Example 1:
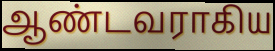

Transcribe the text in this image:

ஆண்டவராகிய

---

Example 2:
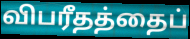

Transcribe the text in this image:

விபரீதத்தைப்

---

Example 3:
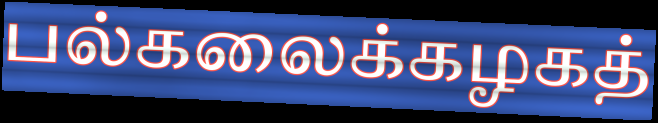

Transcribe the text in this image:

பல்கலைக்கழகத்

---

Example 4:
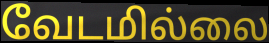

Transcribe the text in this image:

வேடமில்லை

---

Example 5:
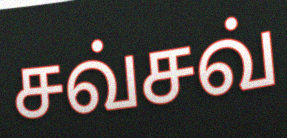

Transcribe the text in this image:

சவ்சவ்